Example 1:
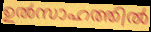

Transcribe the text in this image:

ഉൽസാഹത്തിൽ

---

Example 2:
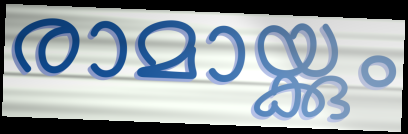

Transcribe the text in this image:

രാമായ്ക്കും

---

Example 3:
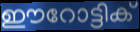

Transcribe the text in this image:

ഈറോട്ടിക്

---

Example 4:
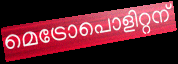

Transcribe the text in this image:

മെട്രോപൊളിറ്റന്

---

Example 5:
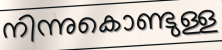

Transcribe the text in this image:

നിന്നുകൊണ്ടുള്ള